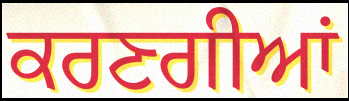
ਕਰਣਗੀਆਂ